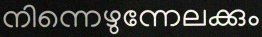
നിന്നെഴുന്നേലക്കും